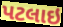
પટલાઇ